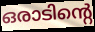
ഒരാടിന്റെ